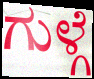
ಗುಳ್ಗೆ